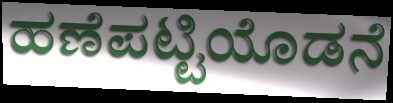
ಹಣೆಪಟ್ಟಿಯೊಡನೆ